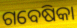
ଗବେଷିକା